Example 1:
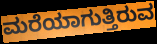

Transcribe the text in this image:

ಮರೆಯಾಗುತ್ತಿರುವ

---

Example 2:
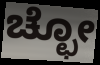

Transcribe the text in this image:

ಚ್ಛೋ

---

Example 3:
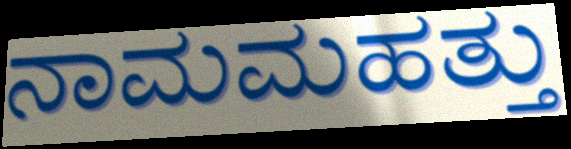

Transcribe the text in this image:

ನಾಮಮಹತ್ತು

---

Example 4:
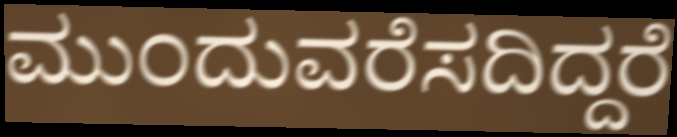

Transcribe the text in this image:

ಮುಂದುವರೆಸದಿದ್ದರೆ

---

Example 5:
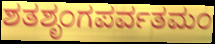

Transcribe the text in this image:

ಶತಶೃಂಗಪರ್ವತಮಂ